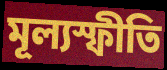
মূল্যস্ফীতি